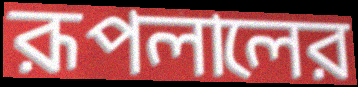
রূপলালের